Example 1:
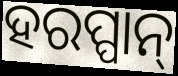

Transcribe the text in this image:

ହରପ୍ପାନ୍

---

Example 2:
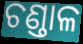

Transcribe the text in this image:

ଚଣ୍ଡାଳ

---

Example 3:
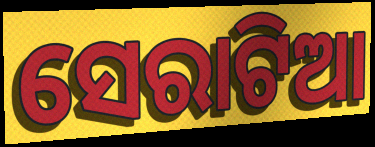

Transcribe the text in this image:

ସେରାଟିଆ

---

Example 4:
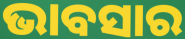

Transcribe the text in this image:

ଭାବସାର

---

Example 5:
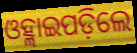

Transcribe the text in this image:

ଓହ୍ଲାଇପଡ଼ିଲେ